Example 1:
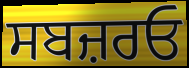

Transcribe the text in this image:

ਸਬਜ਼ਰਓ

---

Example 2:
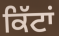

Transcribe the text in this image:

ਕਿੱਟਾਂ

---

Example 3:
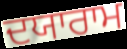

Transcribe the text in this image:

ਦਯਾਰਾਮ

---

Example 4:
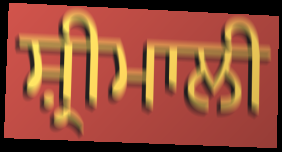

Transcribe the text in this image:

ਸ਼੍ਰੀਮਾਲੀ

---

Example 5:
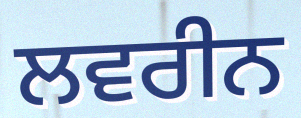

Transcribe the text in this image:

ਲਵਰੀਨ